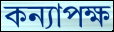
কন্যাপক্ষ